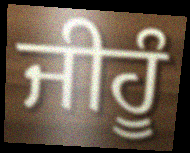
ਜੀਹੂੰ